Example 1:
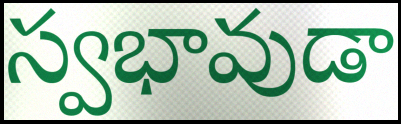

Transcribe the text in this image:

స్వభావుడా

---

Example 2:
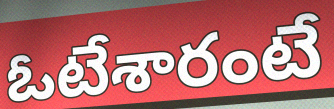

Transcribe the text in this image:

ఓటేశారంటే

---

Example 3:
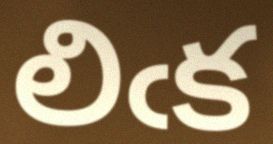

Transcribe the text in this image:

లిఁక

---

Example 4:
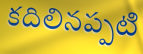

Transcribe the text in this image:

కదిలినప్పటి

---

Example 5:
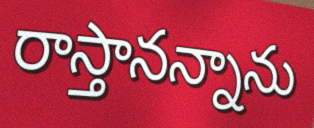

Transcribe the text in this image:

రాస్తానన్నాను